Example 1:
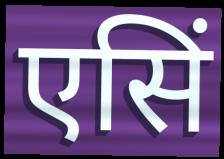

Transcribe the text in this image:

एसिं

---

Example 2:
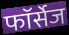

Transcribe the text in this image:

फॉर्सेज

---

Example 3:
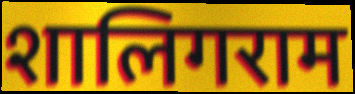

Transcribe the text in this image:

शालिगराम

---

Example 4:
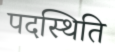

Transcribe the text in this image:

पदस्थिति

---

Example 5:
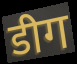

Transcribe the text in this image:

डीग